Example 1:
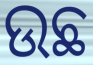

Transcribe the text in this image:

ଉଛ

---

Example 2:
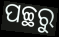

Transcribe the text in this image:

ପଚ୍ଛରୁ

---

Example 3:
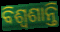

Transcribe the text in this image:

ବିଶ୍ୱଶାନ୍ତି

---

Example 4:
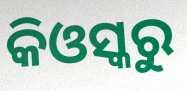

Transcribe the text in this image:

କିଓସ୍କରୁ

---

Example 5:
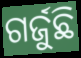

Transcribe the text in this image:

ଗର୍ଜୁଛି